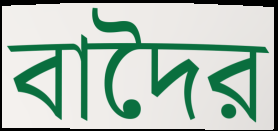
বাদৈর